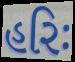
હરિઃ